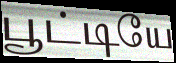
பூட்டியே